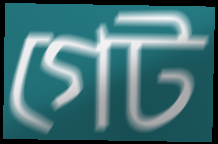
গেট